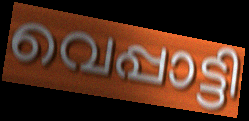
വെപ്പാട്ടി